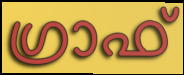
ഗ്രാഫ്